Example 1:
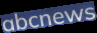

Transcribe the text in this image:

abcnews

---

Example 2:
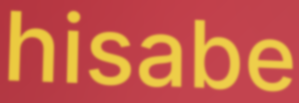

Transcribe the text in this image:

hisabe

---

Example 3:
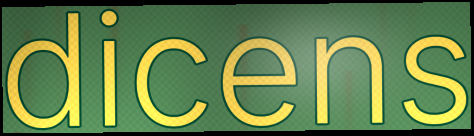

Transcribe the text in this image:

dicens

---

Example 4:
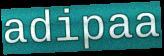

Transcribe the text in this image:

adipaa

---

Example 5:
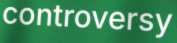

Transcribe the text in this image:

controversy